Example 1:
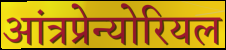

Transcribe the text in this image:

आंत्रप्रेन्योरियल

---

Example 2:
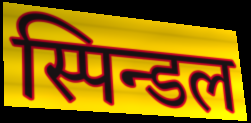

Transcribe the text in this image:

स्पिन्डल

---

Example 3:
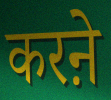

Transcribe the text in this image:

करऩे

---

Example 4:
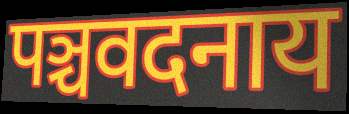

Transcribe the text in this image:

पञ्चवदनाय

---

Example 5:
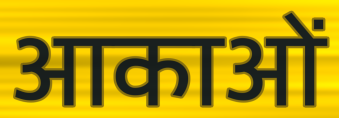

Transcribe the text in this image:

आकाओं